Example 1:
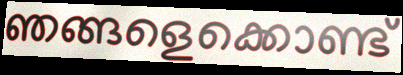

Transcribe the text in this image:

ഞങ്ങളെക്കൊണ്ട്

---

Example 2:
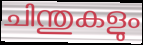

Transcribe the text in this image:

ചിന്തുകളും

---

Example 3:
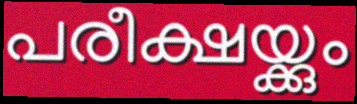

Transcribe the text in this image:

പരീക്ഷയ്ക്കും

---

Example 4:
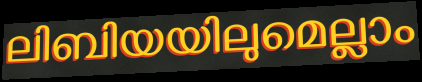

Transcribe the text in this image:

ലിബിയയിലുമെല്ലാം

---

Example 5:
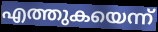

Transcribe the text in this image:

എത്തുകയെന്ന്